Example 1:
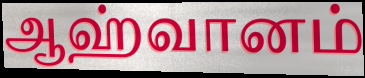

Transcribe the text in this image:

ஆஹ்வானம்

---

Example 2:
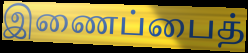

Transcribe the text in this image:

இணைப்பைத்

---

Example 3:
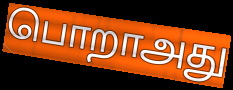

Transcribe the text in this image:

பொறாஅது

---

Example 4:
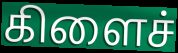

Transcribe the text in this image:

கிளைச்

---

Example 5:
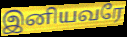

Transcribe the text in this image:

இனியவரே